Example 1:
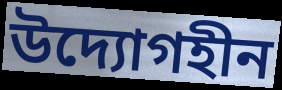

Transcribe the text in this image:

উদ্যোগহীন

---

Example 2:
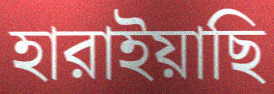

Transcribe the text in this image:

হারাইয়াছি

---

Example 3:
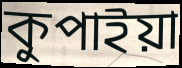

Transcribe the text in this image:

কুপাইয়া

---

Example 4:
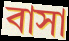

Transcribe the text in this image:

বাসা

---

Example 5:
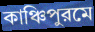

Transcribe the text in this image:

কাঞ্চিপুরমে